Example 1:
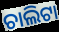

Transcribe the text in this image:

ଚାଲିଟା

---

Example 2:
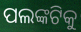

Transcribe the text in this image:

ପଲଙ୍କଟିକୁ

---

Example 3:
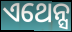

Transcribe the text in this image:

ଏଥେନ୍ସ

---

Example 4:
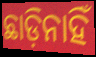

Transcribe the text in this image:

ଛାଡ଼ିନାହିଁ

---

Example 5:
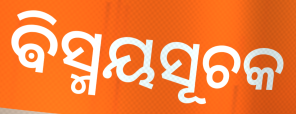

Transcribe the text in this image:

ଵିସ୍ମୟସୂଚକ